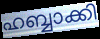
ഹബ്ബാക്കി